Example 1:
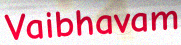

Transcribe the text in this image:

Vaibhavam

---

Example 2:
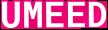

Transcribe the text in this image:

UMEED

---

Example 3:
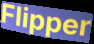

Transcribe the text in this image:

Flipper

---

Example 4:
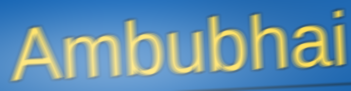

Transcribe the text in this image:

Ambubhai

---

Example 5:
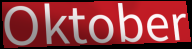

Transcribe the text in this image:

Oktober